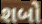
શબો